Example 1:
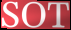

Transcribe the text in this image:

SOT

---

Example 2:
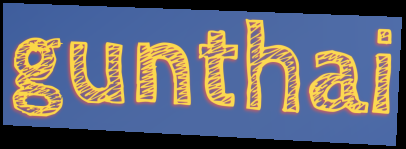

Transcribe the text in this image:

gunthai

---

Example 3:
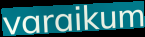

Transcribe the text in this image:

varaikum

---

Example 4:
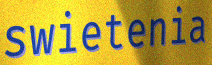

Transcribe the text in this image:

swietenia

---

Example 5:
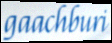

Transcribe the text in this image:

gaachburi